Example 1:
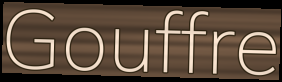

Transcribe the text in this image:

Gouffre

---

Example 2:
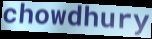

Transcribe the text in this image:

chowdhury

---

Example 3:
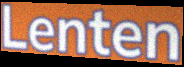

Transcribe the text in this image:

Lenten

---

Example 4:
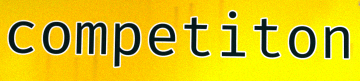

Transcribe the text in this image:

competiton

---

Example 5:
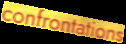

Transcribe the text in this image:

confrontations